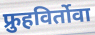
फ्रुहविर्तोवा